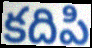
కదిపి